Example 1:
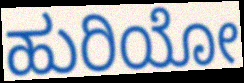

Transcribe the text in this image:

ಹುರಿಯೋ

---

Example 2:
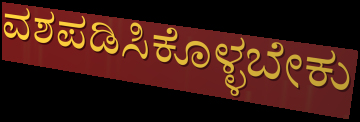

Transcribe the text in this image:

ವಶಪಡಿಸಿಕೊಳ್ಳಬೇಕು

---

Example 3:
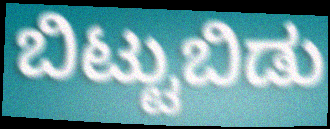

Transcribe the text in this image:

ಬಿಟ್ಟುಬಿಡು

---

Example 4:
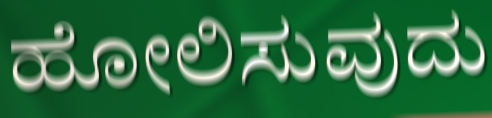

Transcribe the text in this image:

ಹೋಲಿಸುವುದು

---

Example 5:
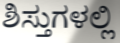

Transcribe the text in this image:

ಶಿಸ್ತುಗಳಲ್ಲಿ